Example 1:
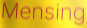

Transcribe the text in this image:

Mensing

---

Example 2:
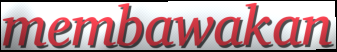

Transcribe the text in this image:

membawakan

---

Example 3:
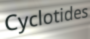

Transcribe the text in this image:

Cyclotides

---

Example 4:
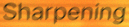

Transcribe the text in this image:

Sharpening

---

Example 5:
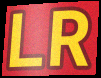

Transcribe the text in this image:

LR